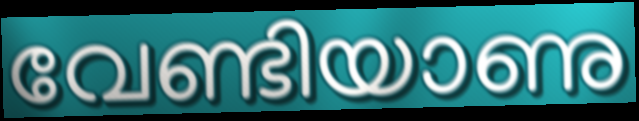
വേണ്ടിയാണു